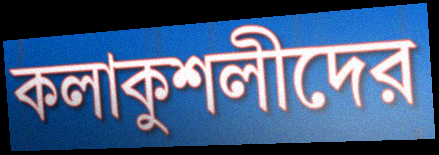
কলাকুশলীদের